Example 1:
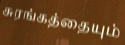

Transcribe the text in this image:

சுரங்கத்தையும்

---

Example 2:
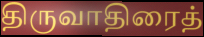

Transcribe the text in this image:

திருவாதிரைத்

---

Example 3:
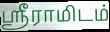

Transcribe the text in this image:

ஸ்ரீராமிடம்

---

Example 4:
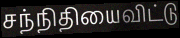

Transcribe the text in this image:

சந்நிதியைவிட்டு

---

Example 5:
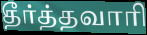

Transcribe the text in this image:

தீர்த்தவாரி